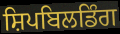
ਸ਼ਿਪਬਿਲਡਿੰਗ